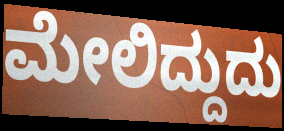
ಮೇಲಿದ್ದುದು